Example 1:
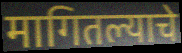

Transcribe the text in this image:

मागितल्याचे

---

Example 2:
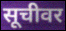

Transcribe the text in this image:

सूचीवर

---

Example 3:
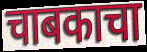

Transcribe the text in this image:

चाबकाचा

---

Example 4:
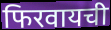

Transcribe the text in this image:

फिरवायची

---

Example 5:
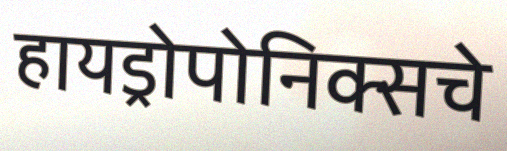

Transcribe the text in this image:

हायड्रोपोनिक्सचे